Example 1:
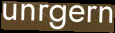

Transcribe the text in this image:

unrgern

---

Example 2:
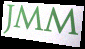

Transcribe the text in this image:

JMM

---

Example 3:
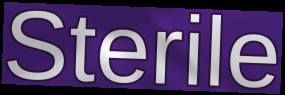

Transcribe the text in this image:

Sterile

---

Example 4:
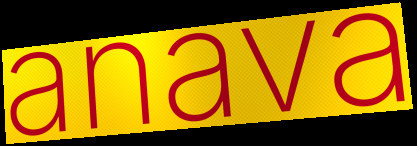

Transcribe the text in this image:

anava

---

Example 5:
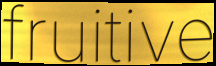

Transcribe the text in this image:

fruitive